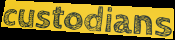
custodians